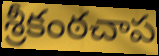
శ్రీకంఠచాప